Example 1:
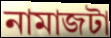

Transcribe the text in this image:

নামাজটা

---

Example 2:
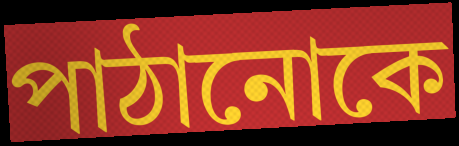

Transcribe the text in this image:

পাঠানোকে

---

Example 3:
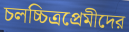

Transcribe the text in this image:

চলচ্চিত্রপ্রেমীদের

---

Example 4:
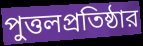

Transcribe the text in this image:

পুত্তলপ্রতিষ্ঠার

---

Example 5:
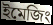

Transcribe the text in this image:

ইমেজিং